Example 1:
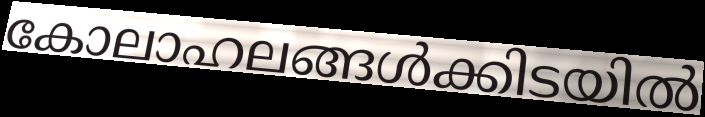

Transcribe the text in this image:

കോലാഹലങ്ങൾക്കിടയിൽ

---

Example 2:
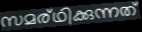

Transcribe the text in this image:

സമര്ഥിക്കുന്നത്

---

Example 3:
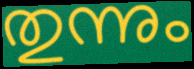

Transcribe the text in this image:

തുന്നും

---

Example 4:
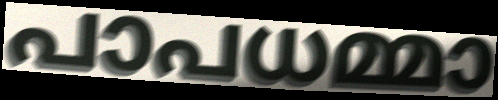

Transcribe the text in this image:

പാപധമ്മാ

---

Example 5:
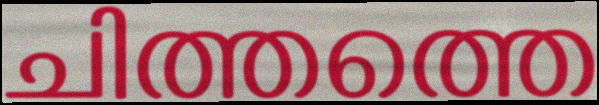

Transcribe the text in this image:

ചിത്തത്തെ